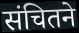
संचितने